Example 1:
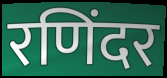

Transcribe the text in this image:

रणिंदर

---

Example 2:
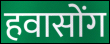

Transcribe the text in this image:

हवासोंग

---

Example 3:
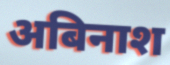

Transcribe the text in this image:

अबिनाश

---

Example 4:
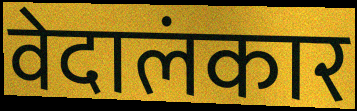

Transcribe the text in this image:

वेदालंकार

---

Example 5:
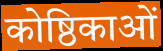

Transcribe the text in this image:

कोष्ठिकाओं